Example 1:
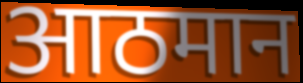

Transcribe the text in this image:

आठमान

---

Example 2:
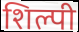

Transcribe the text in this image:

शिल्‍पी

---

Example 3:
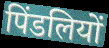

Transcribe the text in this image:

पिंडलियों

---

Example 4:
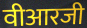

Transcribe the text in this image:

वीआरजी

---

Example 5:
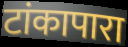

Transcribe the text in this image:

टांकापारा